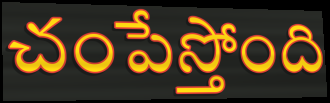
చంపేస్తోంది